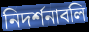
নিদর্শনাবলি